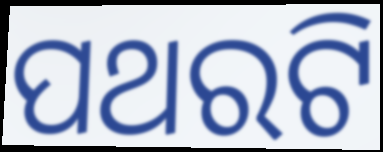
ପଥରଟି